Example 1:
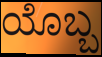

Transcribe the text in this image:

ಯೊಬ್ಬ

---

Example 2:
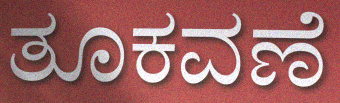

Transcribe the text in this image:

ತೂಕವಣೆ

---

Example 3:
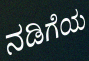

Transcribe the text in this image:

ನಡಿಗೆಯ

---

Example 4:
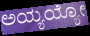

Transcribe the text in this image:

ಅಯ್ಯಯ್ಯೋ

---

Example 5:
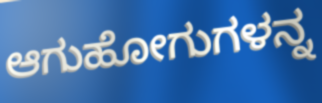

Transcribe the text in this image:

ಆಗುಹೋಗುಗಳನ್ನ